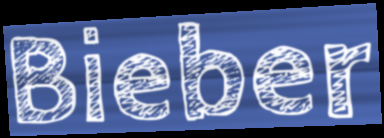
Bieber